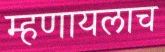
म्हणायलाच